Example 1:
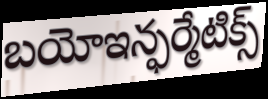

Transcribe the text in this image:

బయోఇన్ఫర్మేటిక్స్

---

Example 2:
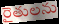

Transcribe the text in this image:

రైతులను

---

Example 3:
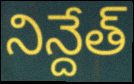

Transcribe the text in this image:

నిన్దేత్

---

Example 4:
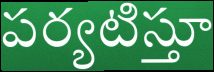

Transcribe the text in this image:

పర్యటిస్తూ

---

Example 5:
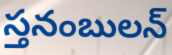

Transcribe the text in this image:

స్తనంబులన్